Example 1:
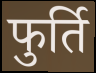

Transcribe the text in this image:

फुर्ति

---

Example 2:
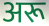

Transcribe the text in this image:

अरू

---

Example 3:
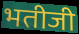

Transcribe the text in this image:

भतीजी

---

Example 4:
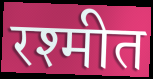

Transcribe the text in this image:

रश्मीत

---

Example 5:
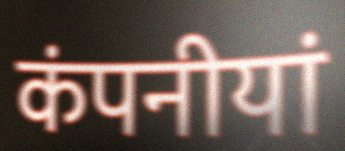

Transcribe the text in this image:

कंपनीयां